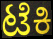
ಟೆಕಿ